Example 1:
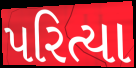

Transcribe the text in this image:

પરિત્યા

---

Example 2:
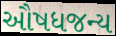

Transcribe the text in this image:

ઔષધજન્ય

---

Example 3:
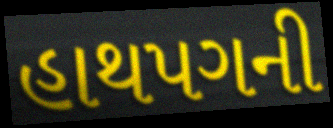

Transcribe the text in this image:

હાથપગની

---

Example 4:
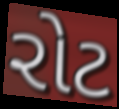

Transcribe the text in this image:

રોટ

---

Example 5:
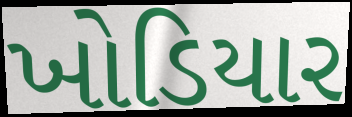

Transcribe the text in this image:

ખોડિયાર